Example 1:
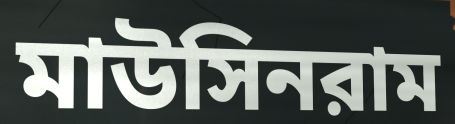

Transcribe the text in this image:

মাউসিনরাম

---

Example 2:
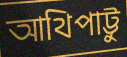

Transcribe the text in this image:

আথিপাট্টু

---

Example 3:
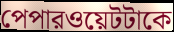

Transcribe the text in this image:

পেপারওয়েটটাকে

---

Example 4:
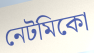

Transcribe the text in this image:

নেটমিকো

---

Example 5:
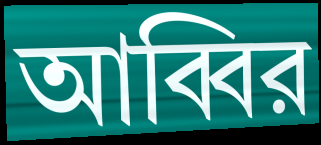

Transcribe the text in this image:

আব্বির